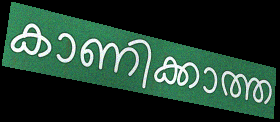
കാണിക്കാത്ത